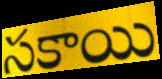
సకాయి